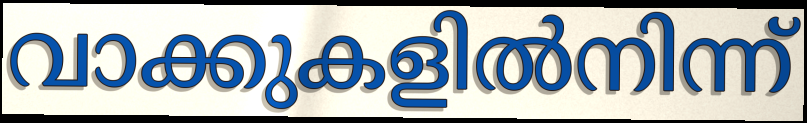
വാക്കുകളിൽനിന്ന്